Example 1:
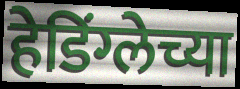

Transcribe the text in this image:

हेडिंग्लेच्या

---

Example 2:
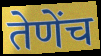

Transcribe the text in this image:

तेणेंच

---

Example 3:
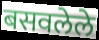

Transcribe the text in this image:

बसवलेले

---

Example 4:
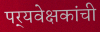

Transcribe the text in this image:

पर्यवेक्षकांची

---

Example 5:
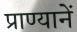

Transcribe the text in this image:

प्राण्यानें